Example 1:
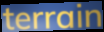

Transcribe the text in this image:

terrain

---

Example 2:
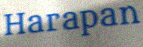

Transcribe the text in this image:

Harapan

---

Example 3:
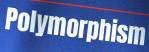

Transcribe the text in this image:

Polymorphism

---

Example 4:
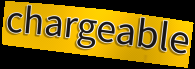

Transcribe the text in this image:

chargeable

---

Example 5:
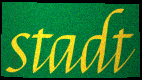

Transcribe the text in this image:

stadt